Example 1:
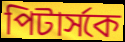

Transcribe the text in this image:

পিটার্সকে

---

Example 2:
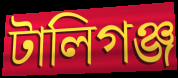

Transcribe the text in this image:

টালিগঞ্জ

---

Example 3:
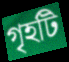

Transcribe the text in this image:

গৃহটি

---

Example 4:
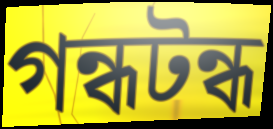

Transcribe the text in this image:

গন্ধটন্ধ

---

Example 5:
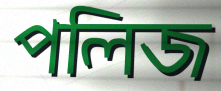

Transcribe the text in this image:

পলিজ